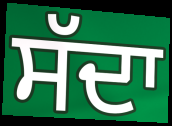
ਸੱਦਾ